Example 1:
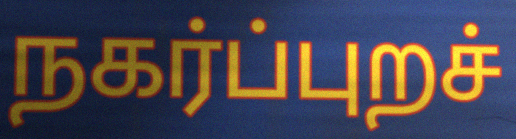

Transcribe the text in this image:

நகர்ப்புறச்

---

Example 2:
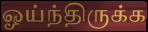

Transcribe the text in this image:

ஓய்ந்திருக்க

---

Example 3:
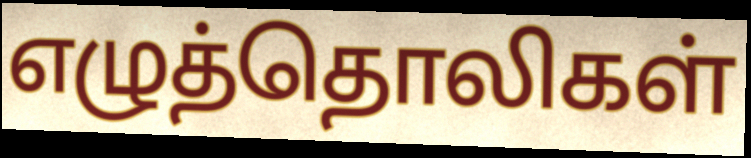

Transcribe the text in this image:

எழுத்தொலிகள்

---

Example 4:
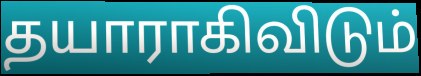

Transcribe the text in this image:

தயாராகிவிடும்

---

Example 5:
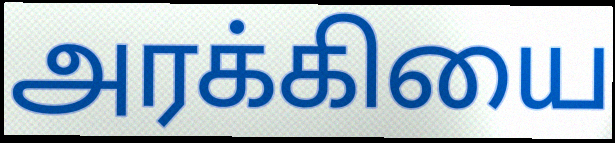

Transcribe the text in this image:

அரக்கியை